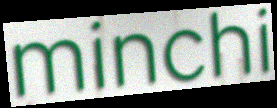
minchi